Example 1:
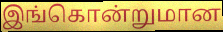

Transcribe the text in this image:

இங்கொன்றுமான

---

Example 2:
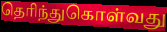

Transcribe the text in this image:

தெரிந்துகொள்வது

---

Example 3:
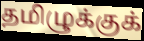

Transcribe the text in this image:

தமிழுக்குக்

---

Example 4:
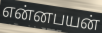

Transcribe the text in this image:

என்னபயன்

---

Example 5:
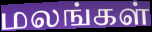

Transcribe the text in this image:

மலங்கள்